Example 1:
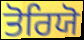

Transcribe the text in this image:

ਤੋਰਿਯੋ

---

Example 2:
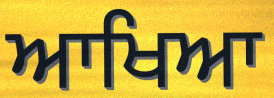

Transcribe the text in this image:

ਆਖਿਆ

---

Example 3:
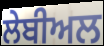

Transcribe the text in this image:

ਲੇਬੀਅਲ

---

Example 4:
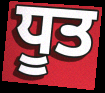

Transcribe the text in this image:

ਧੂਤ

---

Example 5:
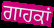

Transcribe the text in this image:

ਗਾਹਕਾਂ